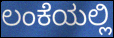
ಲಂಕೆಯಲ್ಲಿ